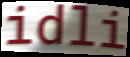
idli